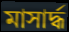
মাসার্দ্ধ